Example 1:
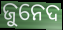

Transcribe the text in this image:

ଜୁନେଦ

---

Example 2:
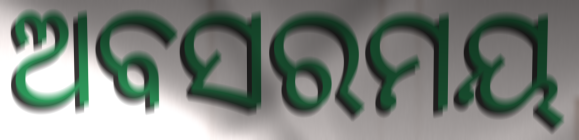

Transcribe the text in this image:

ଅବସରମୟ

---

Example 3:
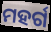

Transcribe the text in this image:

ମହର୍ଗ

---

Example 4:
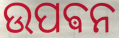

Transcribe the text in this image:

ଉପଵନ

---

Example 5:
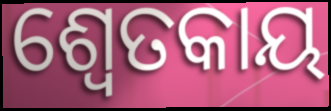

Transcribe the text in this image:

ଶ୍ବେତକାୟ